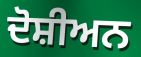
ਦੋਸ਼ੀਅਨ